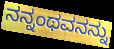
ನನ್ನಂಥವನನ್ನು